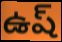
ఉష్